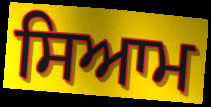
ਸਿਆਮ